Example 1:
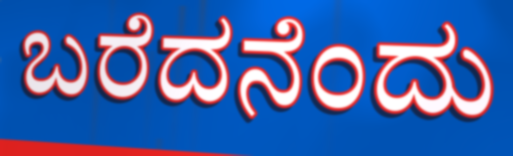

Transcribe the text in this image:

ಬರೆದನೆಂದು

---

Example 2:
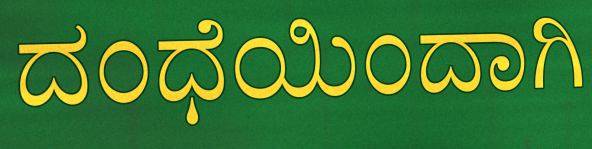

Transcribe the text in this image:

ದಂಧೆಯಿಂದಾಗಿ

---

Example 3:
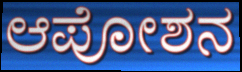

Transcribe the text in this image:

ಆಪೋಶನ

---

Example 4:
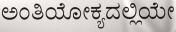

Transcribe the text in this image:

ಅಂತಿಯೋಕ್ಯದಲ್ಲಿಯೇ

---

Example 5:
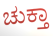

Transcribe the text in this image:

ಚುಕ್ತಾ